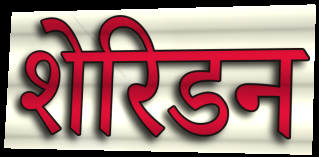
शेरिडन